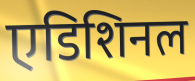
एडिशिनल